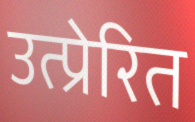
उत्‍प्रेरित